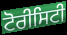
ਟੋਰੀਸਿਟੀ